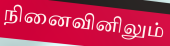
நினைவினிலும்